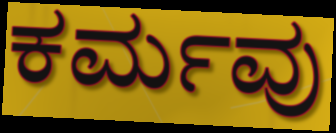
ಕರ್ಮವು